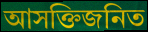
আসক্তিজনিত